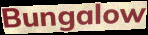
Bungalow